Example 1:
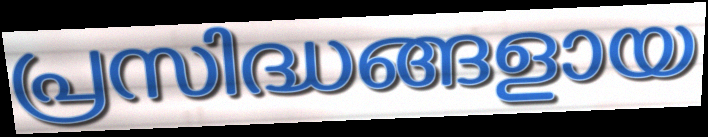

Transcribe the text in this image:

പ്രസിദ്ധങ്ങളായ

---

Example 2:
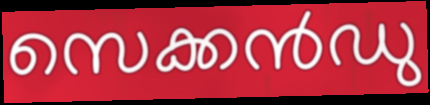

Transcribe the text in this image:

സെക്കൻഡു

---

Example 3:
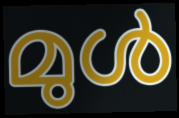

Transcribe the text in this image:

മുൾ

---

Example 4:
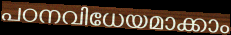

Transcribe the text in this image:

പഠനവിധേയമാക്കാം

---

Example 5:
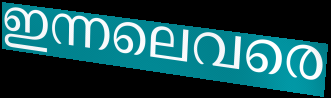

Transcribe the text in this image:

ഇന്നലെവരെ